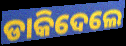
ଡାକିଦେଲେ